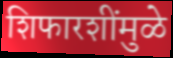
शिफारशींमुळे